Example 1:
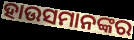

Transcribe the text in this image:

ହାଉସମାନଙ୍କର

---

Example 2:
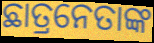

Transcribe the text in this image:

ଛାତ୍ରନେତାଙ୍କ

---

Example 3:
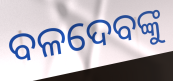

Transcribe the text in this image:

ବଳଦେବଙ୍କୁ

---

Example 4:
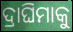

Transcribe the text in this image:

ଦ୍ରାଘିମାକୁ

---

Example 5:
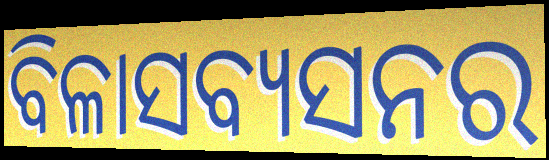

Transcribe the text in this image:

ବିଳାସବ୍ୟସନର